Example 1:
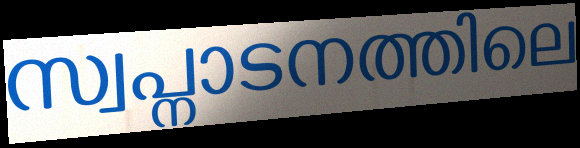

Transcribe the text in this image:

സ്വപ്നാടനത്തിലെ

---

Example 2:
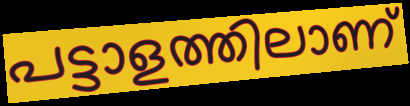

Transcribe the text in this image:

പട്ടാളത്തിലാണ്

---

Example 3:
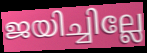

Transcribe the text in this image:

ജയിച്ചില്ലേ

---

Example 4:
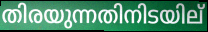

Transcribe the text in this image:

തിരയുന്നതിനിടയില്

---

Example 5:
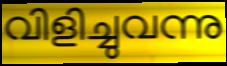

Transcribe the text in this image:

വിളിച്ചുവന്നു